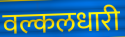
वल्कलधारी